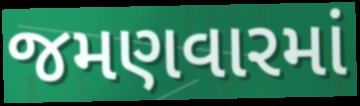
જમણવારમાં